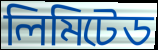
লিমিটেড